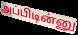
அப்பிடின்னு